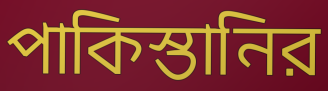
পাকিস্তানির